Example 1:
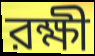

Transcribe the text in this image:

রক্ষী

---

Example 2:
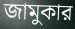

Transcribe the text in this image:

জামুকার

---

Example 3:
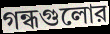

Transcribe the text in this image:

গন্ধগুলোর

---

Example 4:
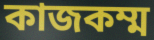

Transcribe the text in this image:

কাজকম্ম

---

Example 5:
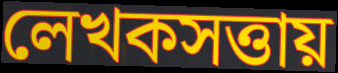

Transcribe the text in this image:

লেখকসত্তায়